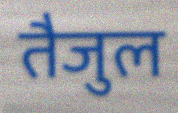
तैजुल